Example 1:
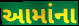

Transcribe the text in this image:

આમાંના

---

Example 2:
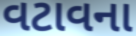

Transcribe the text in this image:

વટાવના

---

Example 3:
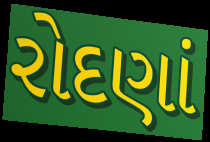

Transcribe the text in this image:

રોદણાં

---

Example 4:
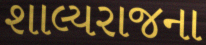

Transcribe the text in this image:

શાલ્યરાજના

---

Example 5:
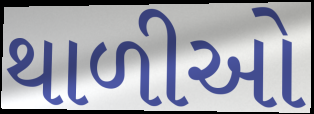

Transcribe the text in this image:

થાળીઓ